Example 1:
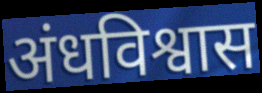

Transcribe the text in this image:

अंधविश्वास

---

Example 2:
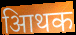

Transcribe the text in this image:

आिथक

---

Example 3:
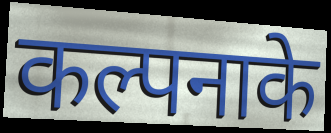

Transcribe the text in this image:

कल्पनाके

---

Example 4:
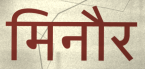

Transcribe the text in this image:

मिनौर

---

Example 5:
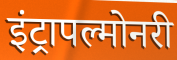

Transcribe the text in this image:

इंट्रापल्मोनरी